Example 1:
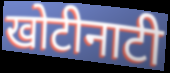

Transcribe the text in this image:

खोटीनाटी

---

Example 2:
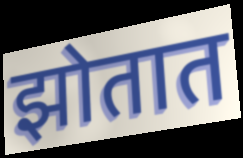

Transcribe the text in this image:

झोतात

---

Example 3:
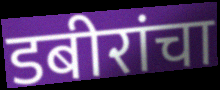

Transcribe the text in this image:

डबीरांचा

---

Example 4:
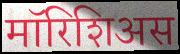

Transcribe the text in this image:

मॉरिशिअस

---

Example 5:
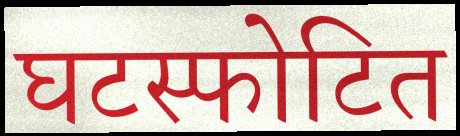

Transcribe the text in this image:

घटस्फोटित